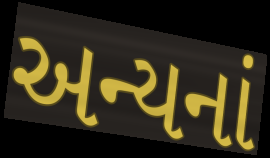
અન્યનાં